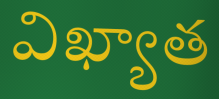
విఖ్యాత